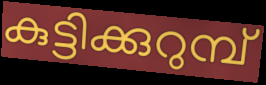
കുട്ടിക്കുറുമ്പ്